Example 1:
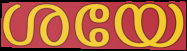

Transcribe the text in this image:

ശയേ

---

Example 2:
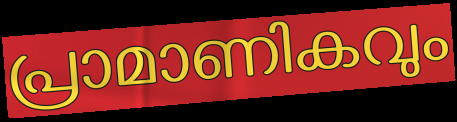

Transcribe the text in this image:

പ്രാമാണികവും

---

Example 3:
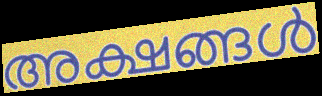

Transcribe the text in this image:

അക്ഷങ്ങൾ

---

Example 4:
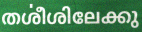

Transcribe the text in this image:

തൎശീശിലേക്കു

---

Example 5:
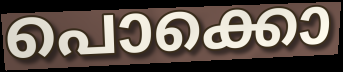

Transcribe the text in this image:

പൊക്കൊ